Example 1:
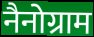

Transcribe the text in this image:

नैनोग्राम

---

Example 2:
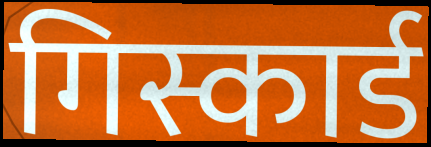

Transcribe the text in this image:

गिस्कार्ड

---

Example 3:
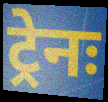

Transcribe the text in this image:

ट्रेनः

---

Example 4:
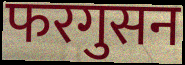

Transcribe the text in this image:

फरगुसन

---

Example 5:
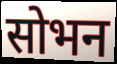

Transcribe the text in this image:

सोभन